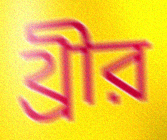
থ্রীর